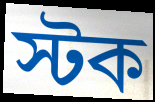
স্টক